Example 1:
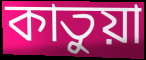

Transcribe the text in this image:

কাতুয়া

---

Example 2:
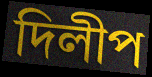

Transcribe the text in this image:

দিলীপ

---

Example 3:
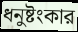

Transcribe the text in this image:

ধনুষ্টংকার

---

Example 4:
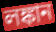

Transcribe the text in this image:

লঙ্কান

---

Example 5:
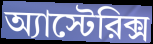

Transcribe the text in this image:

অ্যাস্টেরিক্স